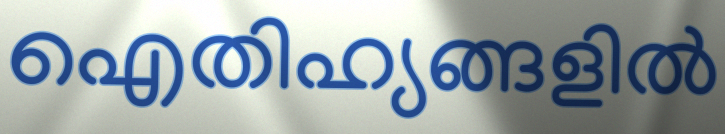
ഐതിഹ്യങ്ങളിൽ